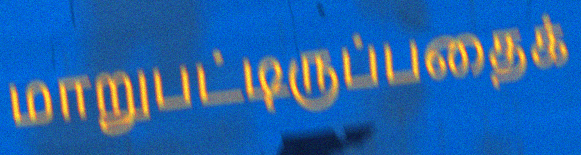
மாறுபட்டிருப்பதைக்